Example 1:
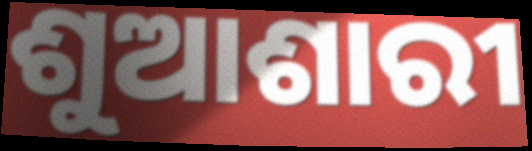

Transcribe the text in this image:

ଶୁଆଶାରୀ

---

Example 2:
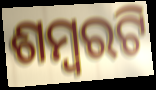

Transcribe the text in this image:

ଶମ୍ବରଟି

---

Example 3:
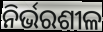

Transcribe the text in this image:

ନିର୍ଭରଶୀଳ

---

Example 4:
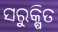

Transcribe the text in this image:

ସରୁକ୍ଷିତ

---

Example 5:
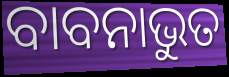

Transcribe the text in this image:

ବାବନାଭୁତ